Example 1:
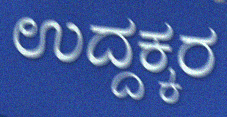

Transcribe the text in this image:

ಉದ್ದಕ್ಕರ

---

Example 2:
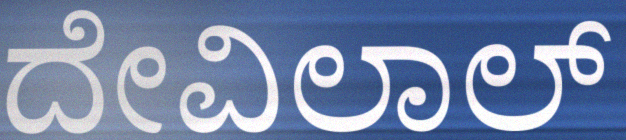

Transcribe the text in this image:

ದೇವಿಲಾಲ್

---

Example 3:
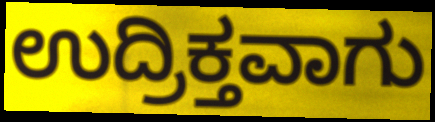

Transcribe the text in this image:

ಉದ್ರಿಕ್ತವಾಗು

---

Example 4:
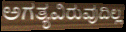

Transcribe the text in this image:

ಅಗತ್ಯವಿರುವುದಿಲ್ಲ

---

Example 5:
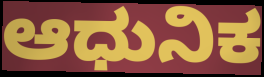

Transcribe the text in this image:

ಆಧುನಿಕ